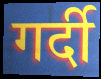
गर्दी